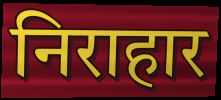
निराहार